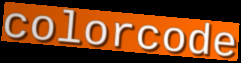
colorcode